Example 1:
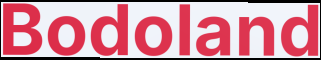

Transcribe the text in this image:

Bodoland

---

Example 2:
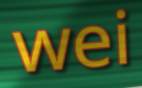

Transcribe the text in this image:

wei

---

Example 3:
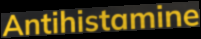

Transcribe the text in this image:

Antihistamine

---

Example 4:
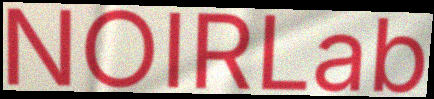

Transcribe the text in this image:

NOIRLab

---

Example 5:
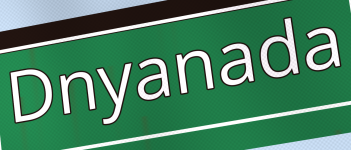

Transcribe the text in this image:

Dnyanada